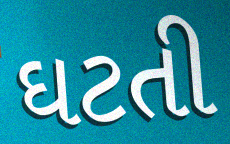
ઘટતી